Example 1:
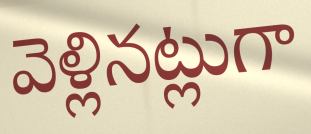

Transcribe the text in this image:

వెళ్లినట్లుగా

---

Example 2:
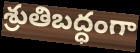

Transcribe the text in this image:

శ్రుతిబద్ధంగా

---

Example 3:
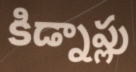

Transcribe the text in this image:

కిడ్నాప్లు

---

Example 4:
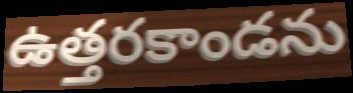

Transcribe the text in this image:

ఉత్తరకాండను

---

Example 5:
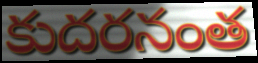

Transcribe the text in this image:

కుదరనంత